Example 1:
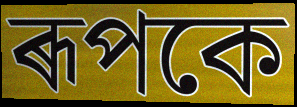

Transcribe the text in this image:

ৰূপকে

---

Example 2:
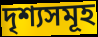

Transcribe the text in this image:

দৃশ্যসমূহ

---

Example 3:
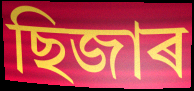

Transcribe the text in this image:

ছিজাৰ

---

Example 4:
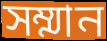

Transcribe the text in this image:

সম্মান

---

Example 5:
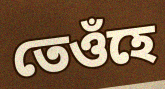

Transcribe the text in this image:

তেওঁহে